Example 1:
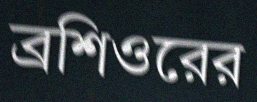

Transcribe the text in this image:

ব্রশিওরের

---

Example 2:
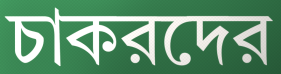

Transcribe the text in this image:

চাকরদের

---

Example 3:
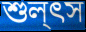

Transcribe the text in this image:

শুল্ৎস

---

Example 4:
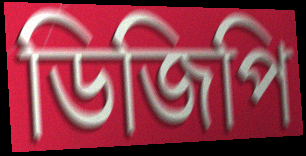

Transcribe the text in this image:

ডিজিপি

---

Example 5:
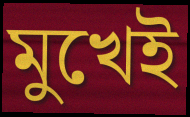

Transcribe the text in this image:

মুখেই